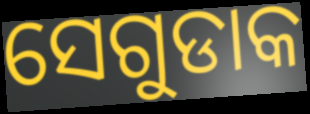
ସେଗୁଡାକ